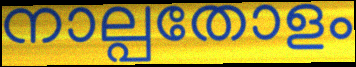
നാല്പതോളം